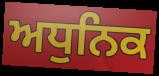
ਅਧੁਨਿਕ